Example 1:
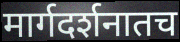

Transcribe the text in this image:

मार्गदर्शनातच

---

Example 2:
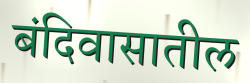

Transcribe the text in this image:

बंदिवासातील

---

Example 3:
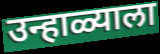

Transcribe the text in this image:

उन्हाळ्याला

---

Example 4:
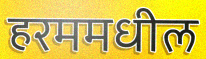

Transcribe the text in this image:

हरममधील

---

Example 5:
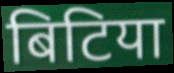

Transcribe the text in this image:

बिटिया